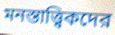
মনস্তাত্ত্বিকদের